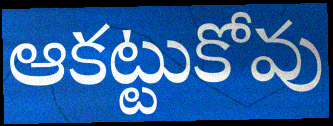
ఆకట్టుకోవు